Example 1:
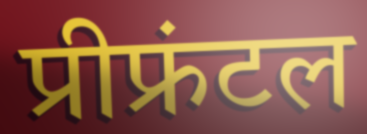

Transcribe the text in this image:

प्रीफ्रंटल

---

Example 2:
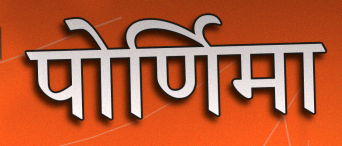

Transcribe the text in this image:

पोर्णिमा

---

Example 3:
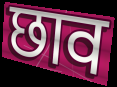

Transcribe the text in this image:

छाव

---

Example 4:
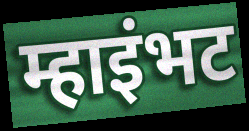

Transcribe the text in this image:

म्हाइंभट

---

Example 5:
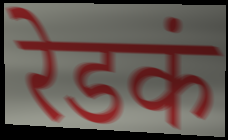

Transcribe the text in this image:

रेडकं